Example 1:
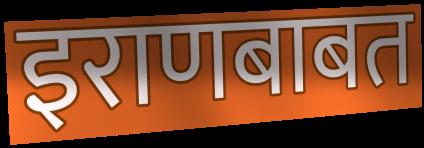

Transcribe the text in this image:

इराणबाबत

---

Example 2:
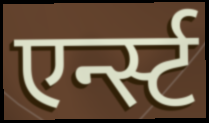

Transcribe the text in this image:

एर्न्स्ट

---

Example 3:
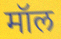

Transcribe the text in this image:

मॉल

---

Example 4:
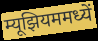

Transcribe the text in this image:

म्यूझियममध्यें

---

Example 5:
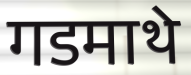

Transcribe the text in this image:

गडमाथे